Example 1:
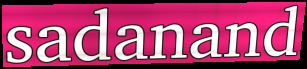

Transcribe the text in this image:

sadanand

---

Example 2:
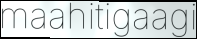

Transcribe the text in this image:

maahitigaagi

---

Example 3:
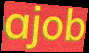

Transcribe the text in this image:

ajob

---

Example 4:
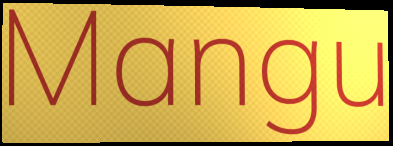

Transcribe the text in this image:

Mangu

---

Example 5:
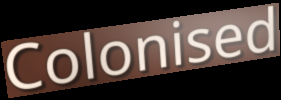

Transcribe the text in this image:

Colonised